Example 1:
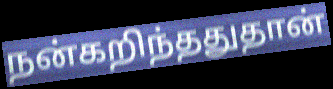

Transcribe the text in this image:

நன்கறிந்ததுதான்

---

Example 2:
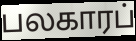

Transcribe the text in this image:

பலகாரப்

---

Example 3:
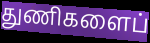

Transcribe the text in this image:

துணிகளைப்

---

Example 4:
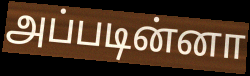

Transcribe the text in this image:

அப்படின்னா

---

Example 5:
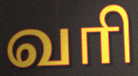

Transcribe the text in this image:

வரி